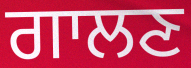
ਗਾਲਣ